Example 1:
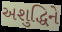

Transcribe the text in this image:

અશુદ્ધિને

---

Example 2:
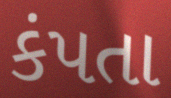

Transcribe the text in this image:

કંપતા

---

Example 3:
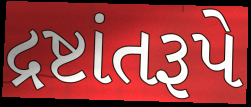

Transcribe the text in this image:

દ્રષ્ટાંતરૂપે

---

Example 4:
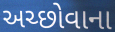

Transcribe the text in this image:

અચ્છોવાના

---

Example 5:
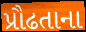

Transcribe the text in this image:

પ્રૌઢતાના